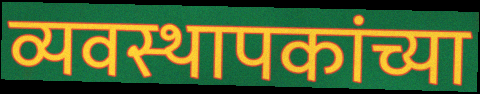
व्यवस्थापकांच्या